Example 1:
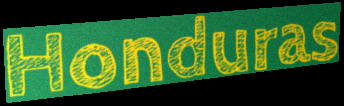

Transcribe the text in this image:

Honduras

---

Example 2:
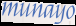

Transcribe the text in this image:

munayo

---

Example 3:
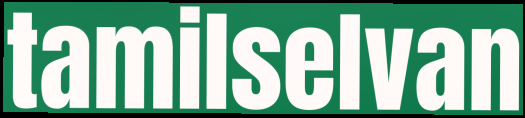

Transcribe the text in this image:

tamilselvan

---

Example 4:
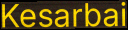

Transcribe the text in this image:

Kesarbai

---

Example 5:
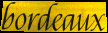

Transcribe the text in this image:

bordeaux